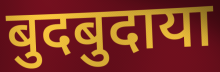
बुदबुदाया